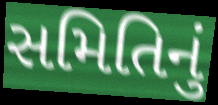
સમિતિનું